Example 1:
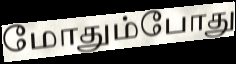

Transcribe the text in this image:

மோதும்போது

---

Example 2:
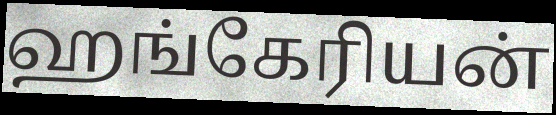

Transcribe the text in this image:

ஹங்கேரியன்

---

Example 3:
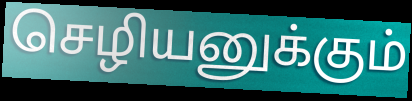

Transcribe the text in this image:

செழியனுக்கும்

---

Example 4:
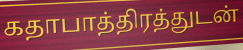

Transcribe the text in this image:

கதாபாத்திரத்துடன்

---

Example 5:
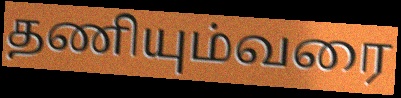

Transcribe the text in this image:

தணியும்வரை